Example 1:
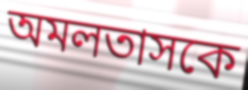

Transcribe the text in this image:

অমলতাসকে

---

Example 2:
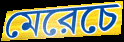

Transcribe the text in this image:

মেরেচে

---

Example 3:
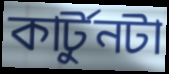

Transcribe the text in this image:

কার্টুনটা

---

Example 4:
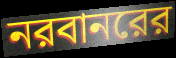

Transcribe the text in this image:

নরবানরের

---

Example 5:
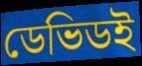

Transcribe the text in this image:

ডেভিডই